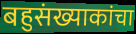
बहुसंख्याकांचा